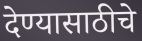
देण्यासाठीचे